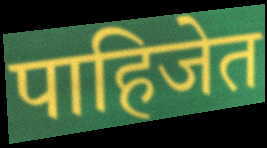
पाहिजेत